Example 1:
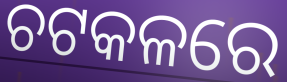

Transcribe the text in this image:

ଚଟକଳରେ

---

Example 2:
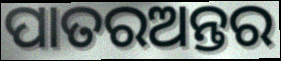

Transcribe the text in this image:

ପାତରଅନ୍ତର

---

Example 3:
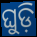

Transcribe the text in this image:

ଘୁଡ଼ି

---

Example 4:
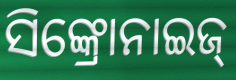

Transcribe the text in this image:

ସିଙ୍କ୍ରୋନାଇଜ୍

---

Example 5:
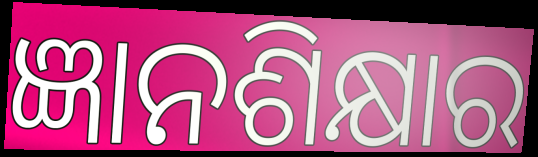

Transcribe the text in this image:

ଜ୍ଞାନଶିକ୍ଷାର